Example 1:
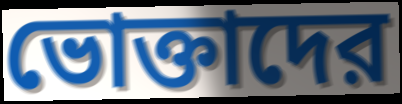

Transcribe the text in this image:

ভোক্তাদের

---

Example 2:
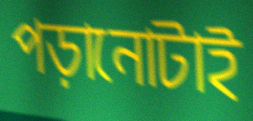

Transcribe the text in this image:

পড়ানোটাই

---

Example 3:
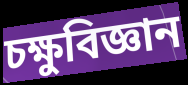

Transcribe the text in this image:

চক্ষুবিজ্ঞান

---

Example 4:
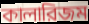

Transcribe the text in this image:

কালারিজম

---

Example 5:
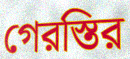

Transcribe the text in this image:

গেরস্তির